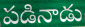
పడినాడు